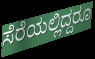
ಸೆರೆಯಲ್ಲಿದ್ದರೂ